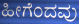
ಹೀಗೆಂದವು